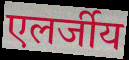
एलर्जीय